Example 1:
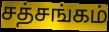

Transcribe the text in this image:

சத்சங்கம்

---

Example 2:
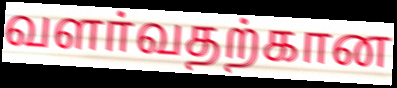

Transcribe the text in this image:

வளர்வதற்கான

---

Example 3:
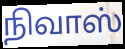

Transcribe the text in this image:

நிவாஸ்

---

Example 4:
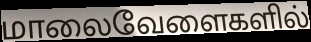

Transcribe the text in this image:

மாலைவேளைகளில்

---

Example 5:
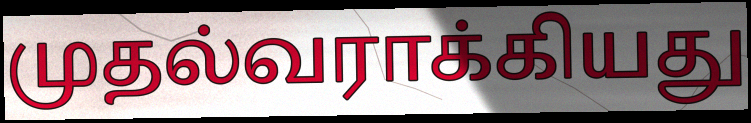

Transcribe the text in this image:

முதல்வராக்கியது